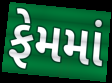
ફેમમાં